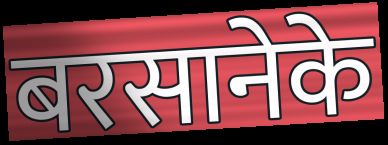
बरसानेके